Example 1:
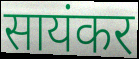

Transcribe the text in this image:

सायंकर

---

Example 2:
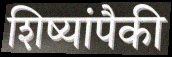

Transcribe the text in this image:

शिष्यांपैकी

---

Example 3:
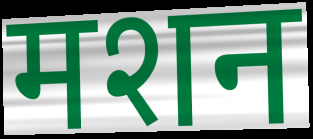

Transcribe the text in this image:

मशन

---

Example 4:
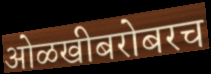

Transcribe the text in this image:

ओळखीबरोबरच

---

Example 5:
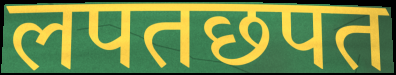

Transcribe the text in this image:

लपतछपत